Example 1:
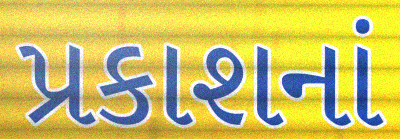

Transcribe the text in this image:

પ્રકાશનાં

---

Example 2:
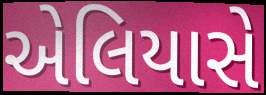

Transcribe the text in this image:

એલિયાસે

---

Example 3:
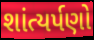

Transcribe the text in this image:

શાંત્યર્પણો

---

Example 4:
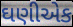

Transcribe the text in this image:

ઘણીએક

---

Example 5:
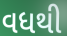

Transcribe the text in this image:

વધથી